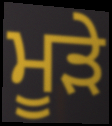
ਮੂੜੇ